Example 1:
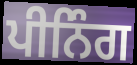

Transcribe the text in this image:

ਪੀਨਿੰਗ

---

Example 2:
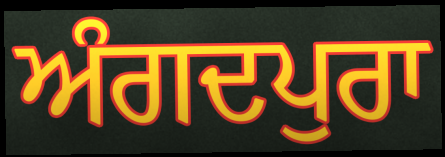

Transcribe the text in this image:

ਅੰਗਦਪੁਰਾ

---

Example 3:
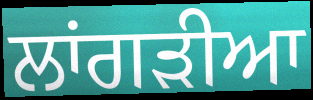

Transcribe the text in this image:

ਲਾਂਗੜੀਆ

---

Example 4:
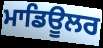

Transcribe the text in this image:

ਮਾਡਿਊਲਰ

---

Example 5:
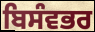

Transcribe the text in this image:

ਬਿਸੰਵਭਰ